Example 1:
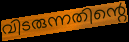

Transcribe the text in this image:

വിടരുന്നതിന്റെ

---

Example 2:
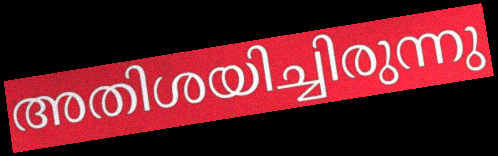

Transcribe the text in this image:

അതിശയിച്ചിരുന്നു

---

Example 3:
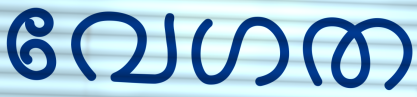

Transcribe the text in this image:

വേഗത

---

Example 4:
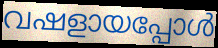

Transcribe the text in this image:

വഷളായപ്പോൾ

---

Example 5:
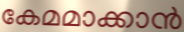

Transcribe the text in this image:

കേമമാക്കാൻ